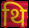
थि